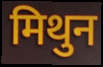
मिथुन